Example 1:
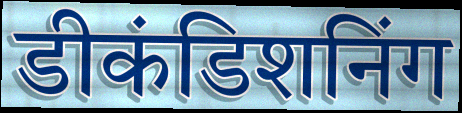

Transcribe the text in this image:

डीकंडिशनिंग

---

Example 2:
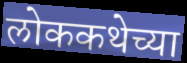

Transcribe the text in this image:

लोककथेच्या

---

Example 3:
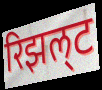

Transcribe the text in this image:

रिझल्ट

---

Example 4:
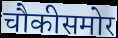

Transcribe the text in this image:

चौकीसमोर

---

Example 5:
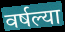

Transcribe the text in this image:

वर्षल्या